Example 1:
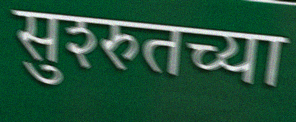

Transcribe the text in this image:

सुश्रुतच्या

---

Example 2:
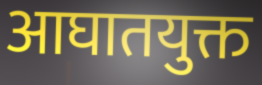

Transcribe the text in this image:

आघातयुक्त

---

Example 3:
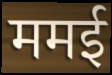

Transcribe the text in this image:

ममई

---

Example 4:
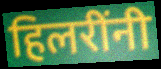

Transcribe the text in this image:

हिलरींनी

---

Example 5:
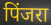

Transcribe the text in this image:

पिंजरा